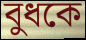
বুধকে